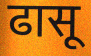
ढासू